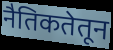
नैतिकतेतून